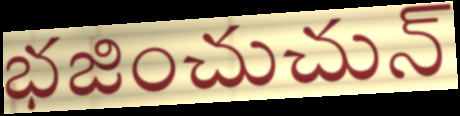
భజించుచున్